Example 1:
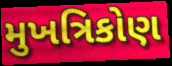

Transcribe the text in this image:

મુખત્રિકોણ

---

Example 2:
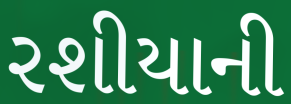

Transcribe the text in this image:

રશીયાની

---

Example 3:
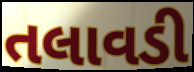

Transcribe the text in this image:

તલાવડી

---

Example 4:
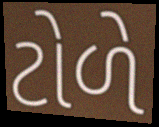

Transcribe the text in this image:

ટોળે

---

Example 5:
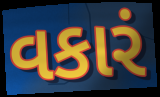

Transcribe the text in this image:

વકારં